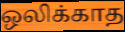
ஒலிக்காத